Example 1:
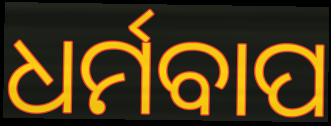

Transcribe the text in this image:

ଧର୍ମବାପ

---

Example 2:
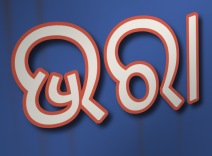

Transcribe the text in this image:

ଭରା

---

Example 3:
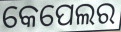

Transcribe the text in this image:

କେପେଲର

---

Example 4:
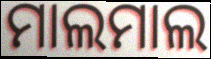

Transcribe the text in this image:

ମାଲମାଲ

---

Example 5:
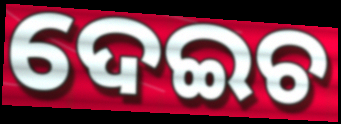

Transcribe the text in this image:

ଦେଇଚ